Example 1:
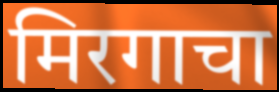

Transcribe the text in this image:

मिरगाचा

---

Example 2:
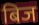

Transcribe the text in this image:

बिज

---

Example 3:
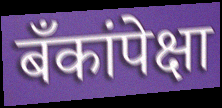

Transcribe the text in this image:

बँकांपेक्षा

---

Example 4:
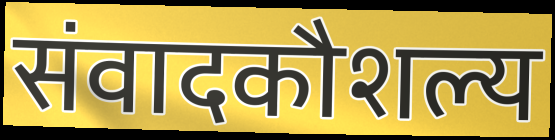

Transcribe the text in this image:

संवादकौशल्य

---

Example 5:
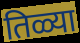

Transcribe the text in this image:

तिळ्या